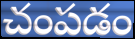
చంపడం